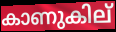
കാണുകില്